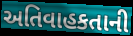
અતિવાહકતાની